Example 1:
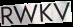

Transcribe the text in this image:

RWKV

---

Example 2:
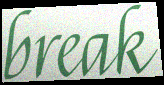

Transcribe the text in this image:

break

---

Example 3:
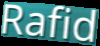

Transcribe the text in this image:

Rafid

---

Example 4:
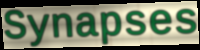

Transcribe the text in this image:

Synapses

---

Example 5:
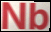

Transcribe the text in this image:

Nb